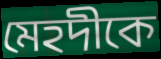
মেহদীকে